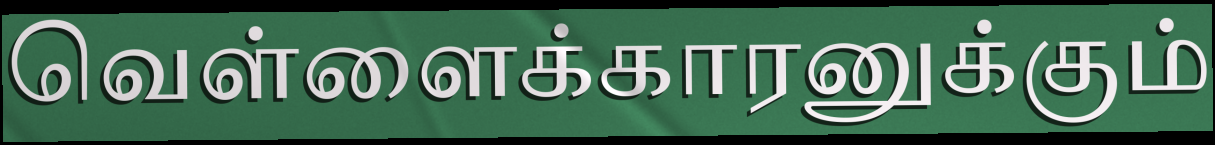
வெள்ளைக்காரனுக்கும்